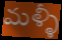
మళ్ళీ